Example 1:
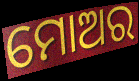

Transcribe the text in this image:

ମୋଅର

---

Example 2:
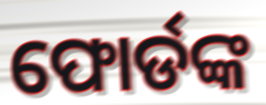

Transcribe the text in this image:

ଫୋର୍ଡଙ୍କ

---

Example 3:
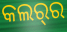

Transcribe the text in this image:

କଲର୍‌ର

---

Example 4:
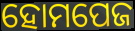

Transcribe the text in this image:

ହୋମପେଜ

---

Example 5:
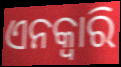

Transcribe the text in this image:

ଏନକ୍ଵାରି